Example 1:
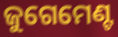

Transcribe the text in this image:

ଜୁଗେମେଣ୍ଟ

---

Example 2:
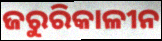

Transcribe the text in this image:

ଜରୁରିକାଳୀନ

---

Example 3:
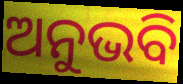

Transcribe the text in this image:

ଅନୁଭବି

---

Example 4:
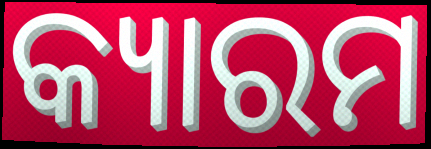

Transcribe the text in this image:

କ୍ୟାରମ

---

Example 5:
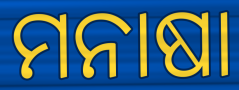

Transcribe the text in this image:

ମନାଷା